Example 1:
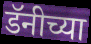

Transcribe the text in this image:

डॅनीच्या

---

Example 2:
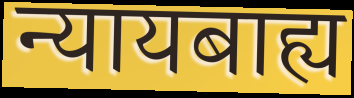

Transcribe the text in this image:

न्यायबाह्य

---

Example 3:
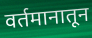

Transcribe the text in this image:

वर्तमानातून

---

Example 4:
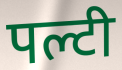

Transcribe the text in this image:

पल्टी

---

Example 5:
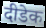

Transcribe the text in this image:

दीडेक